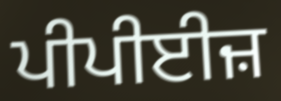
ਪੀਪੀਈਜ਼